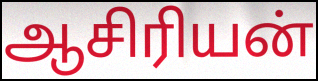
ஆசிரியன்